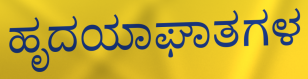
ಹೃದಯಾಘಾತಗಳ